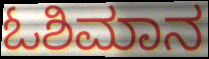
ಓಶಿಮಾನ